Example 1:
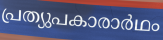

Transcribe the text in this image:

പ്രത്യുപകാരാർഥം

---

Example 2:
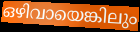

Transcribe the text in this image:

ഒഴിവായെങ്കിലും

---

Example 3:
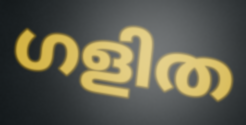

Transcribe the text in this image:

ഗളിത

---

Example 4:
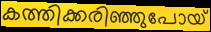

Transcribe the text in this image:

കത്തിക്കരിഞ്ഞുപോയ്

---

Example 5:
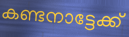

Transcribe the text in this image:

കണ്ടനാട്ടേക്ക്